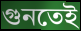
গুনতেই